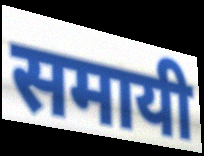
समायी